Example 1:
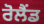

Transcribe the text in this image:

ਰੋਲੈਂਡ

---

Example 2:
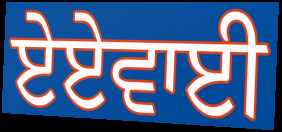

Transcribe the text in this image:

ਏਏਵਾਈ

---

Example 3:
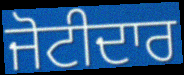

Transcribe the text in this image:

ਜੋਟੀਦਾਰ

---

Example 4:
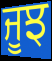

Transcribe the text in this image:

ਜੂਝ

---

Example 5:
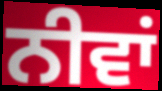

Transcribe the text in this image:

ਨੀਵਾਂ